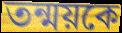
তন্ময়কে